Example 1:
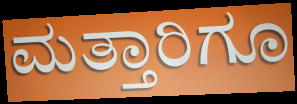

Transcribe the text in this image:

ಮತ್ತಾರಿಗೂ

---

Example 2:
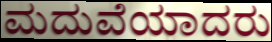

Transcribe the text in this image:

ಮದುವೆಯಾದರು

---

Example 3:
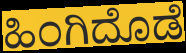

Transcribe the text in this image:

ಹಿಂಗಿದೊಡೆ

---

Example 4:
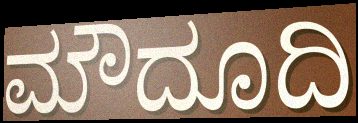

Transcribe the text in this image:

ಮೌದೂದಿ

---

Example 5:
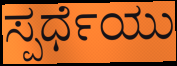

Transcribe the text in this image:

ಸ್ಪರ್ಧೆಯು